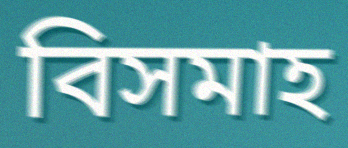
বিসমাহ